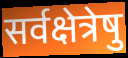
सर्वक्षेत्रेषु